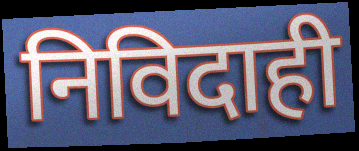
निविदाही